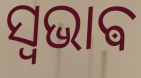
ସ୍ଵଭାଵ